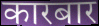
कारबार